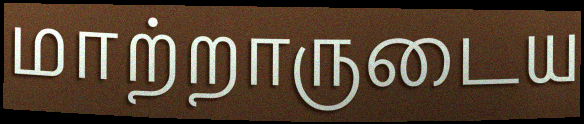
மாற்றாருடைய